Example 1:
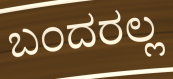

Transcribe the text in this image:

ಬಂದರಲ್ಲ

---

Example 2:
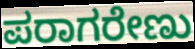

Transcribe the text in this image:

ಪರಾಗರೇಣು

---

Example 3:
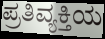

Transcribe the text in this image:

ಪ್ರತಿವ್ಯಕ್ತಿಯ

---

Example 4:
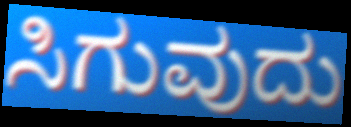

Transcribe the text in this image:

ಸಿಗುವುದು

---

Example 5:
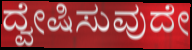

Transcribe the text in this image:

ದ್ವೇಷಿಸುವುದೇ